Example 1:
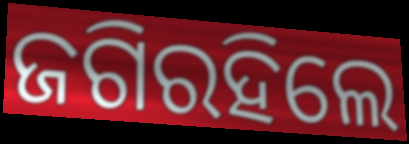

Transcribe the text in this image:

ଜଗିରହିଲେ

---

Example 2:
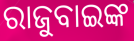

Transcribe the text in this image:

ରାଜୁବାଇଙ୍କ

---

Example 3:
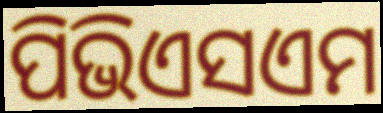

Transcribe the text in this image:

ପିଭିଏସଏମ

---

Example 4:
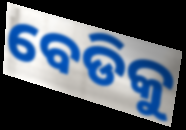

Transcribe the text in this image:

ବେଡିକୁ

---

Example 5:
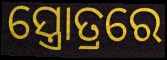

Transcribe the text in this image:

ସ୍ତ୍ରୋତ୍ରରେ